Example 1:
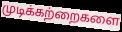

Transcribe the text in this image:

முடிக்கற்றைகளை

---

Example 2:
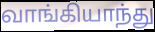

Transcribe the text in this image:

வாங்கியாந்து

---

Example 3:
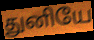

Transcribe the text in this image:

துனியே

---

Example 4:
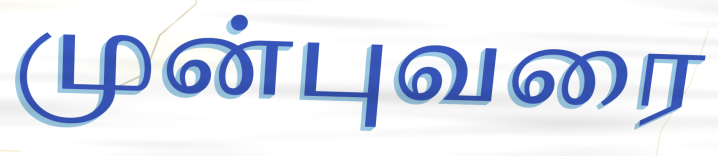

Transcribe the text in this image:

முன்புவரை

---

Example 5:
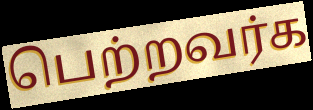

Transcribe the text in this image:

பெற்றவர்க